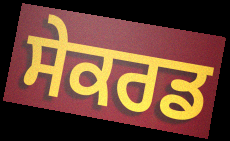
ਸੇਕਰਡ